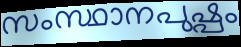
സംസ്ഥാനപുഷ്പം